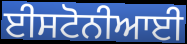
ਈਸਟੋਨੀਆਈ